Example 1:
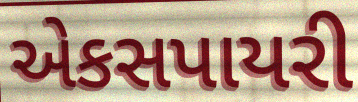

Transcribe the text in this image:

એકસપાયરી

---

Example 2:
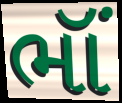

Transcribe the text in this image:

ભૉં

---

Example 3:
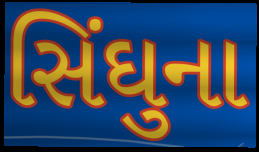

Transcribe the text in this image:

સિંઘુના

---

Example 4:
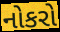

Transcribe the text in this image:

નોકરો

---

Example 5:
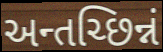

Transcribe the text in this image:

અન્તચ્છિન્નં